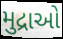
મુદ્રાઓ